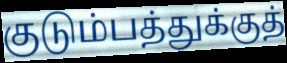
குடும்பத்துக்குத்